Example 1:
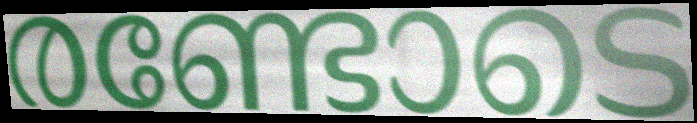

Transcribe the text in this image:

രണ്ടോടെ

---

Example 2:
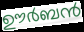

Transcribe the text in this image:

ഊർബൻ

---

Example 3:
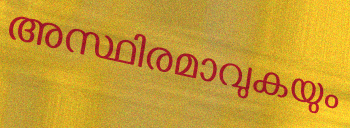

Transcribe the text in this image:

അസ്ഥിരമാവുകയും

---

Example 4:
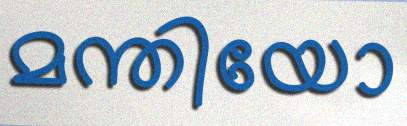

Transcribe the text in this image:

മന്തിയോ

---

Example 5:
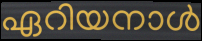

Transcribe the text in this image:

ഏറിയനാൾ